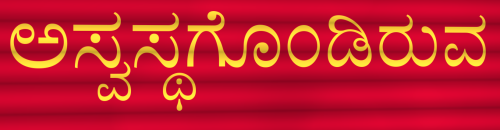
ಅಸ್ವಸ್ಥಗೊಂಡಿರುವ